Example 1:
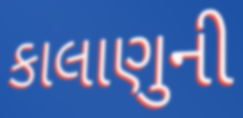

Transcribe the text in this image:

કાલાણુની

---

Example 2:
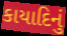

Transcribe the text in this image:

કાયાદિનું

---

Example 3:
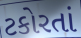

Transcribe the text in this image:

ટકોરતાં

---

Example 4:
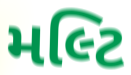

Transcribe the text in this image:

મલ્ટિ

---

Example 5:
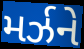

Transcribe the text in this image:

મર્ઝને